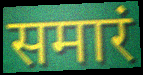
समारं